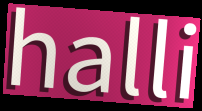
halli